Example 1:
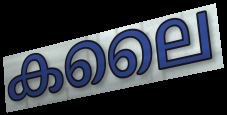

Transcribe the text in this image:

കലൈ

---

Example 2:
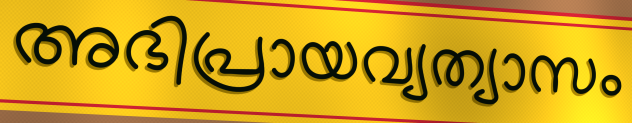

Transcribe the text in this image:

അഭിപ്രായവ്യത്യാസം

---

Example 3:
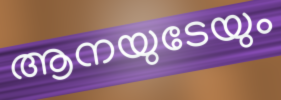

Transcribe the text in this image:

ആനയുടേയും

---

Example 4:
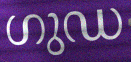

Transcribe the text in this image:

ഗുഡ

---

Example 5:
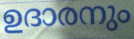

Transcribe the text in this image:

ഉദാരനും